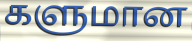
களுமான